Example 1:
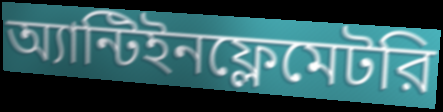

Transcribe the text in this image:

অ্যান্টিইনফ্লেমেটরি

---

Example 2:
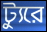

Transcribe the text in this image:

ট্যুরে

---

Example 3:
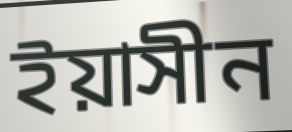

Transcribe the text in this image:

ইয়াসীন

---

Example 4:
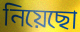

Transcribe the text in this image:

নিয়েছো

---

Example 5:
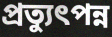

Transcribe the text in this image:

প্রত্যুৎপন্ন